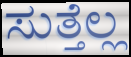
ಸುತ್ತೆಲ್ಲ